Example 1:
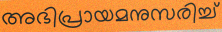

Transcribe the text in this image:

അഭിപ്രായമനുസരിച്ച്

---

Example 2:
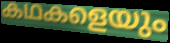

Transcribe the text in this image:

കഥകളെയും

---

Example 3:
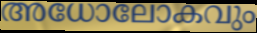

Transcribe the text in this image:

അധോലോകവും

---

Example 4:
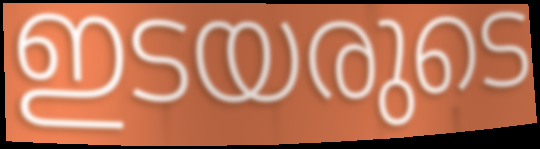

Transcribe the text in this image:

ഇടയരുടെ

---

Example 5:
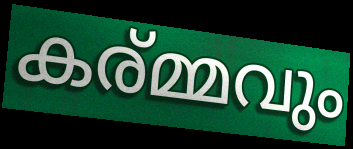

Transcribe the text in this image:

കര്മ്മവും